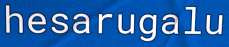
hesarugalu